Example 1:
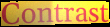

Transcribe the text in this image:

Contrast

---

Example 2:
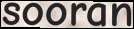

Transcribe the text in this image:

sooran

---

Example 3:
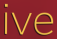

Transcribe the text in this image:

ive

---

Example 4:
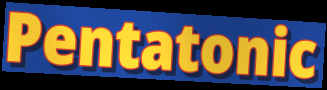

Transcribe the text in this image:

Pentatonic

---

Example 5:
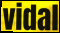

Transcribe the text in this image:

vidal